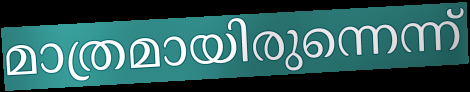
മാത്രമായിരുന്നെന്ന്